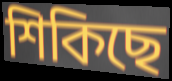
শিকিছে